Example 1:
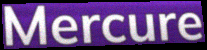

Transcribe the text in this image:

Mercure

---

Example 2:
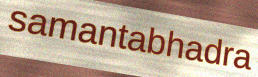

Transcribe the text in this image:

samantabhadra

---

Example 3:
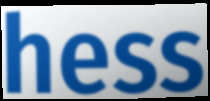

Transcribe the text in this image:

hess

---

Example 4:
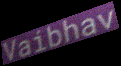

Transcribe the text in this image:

Vaibhav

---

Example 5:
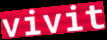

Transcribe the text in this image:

vivit